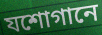
যশোগানে